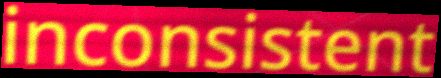
inconsistent